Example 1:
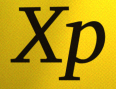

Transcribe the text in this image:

Xp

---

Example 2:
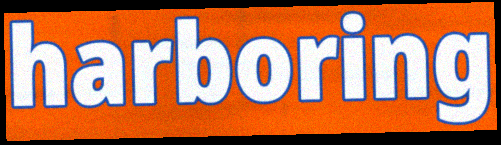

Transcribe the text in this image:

harboring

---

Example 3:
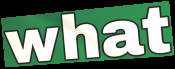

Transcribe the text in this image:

what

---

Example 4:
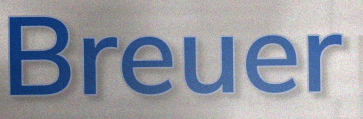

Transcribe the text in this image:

Breuer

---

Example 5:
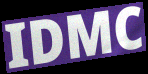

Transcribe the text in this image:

IDMC